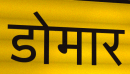
डोमार